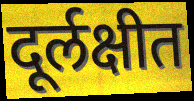
दूर्लक्षीत